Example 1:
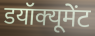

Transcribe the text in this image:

डयॉक्‍यूमेंट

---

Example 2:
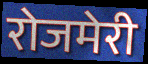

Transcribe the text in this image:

रोजमेरी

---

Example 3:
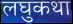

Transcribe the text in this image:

लघुकथा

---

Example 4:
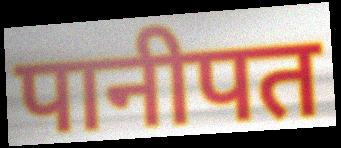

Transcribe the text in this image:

पानीपत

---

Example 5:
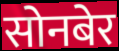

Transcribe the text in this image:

सोनबेर